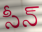
సీన్